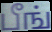
பீங்